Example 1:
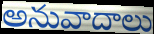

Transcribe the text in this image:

అనువాదాలు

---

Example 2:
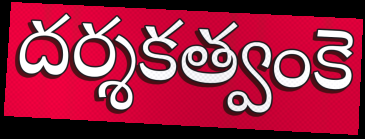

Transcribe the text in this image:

దర్శకత్వంకె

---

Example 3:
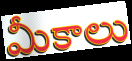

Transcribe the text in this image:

మీకాలు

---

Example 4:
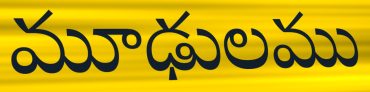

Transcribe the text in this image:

మూఢులము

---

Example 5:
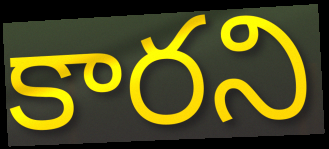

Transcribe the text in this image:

కారని